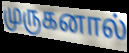
முருகனால்